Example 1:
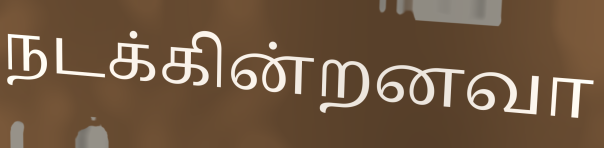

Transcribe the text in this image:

நடக்கின்றனவா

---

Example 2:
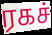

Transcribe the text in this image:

ரகச்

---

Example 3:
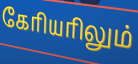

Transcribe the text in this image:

கேரியரிலும்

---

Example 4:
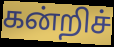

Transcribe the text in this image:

கன்றிச்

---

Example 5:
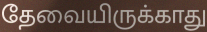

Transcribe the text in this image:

தேவையிருக்காது